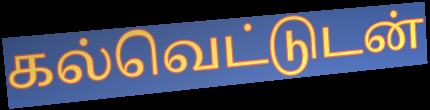
கல்வெட்டுடன்